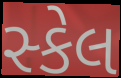
સ્કેલ